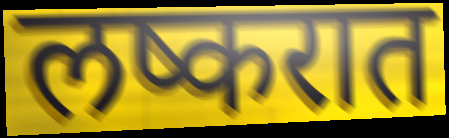
लष्करात